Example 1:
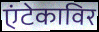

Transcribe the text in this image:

एंटेकाविर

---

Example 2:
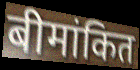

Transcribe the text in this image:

बीमांकित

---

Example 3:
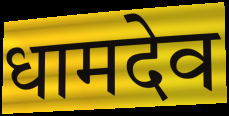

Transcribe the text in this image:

धामदेव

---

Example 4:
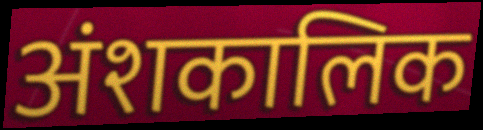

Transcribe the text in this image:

अंशकालिक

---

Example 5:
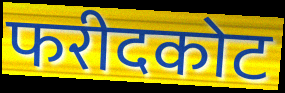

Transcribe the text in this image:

फरीदकोट